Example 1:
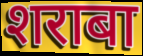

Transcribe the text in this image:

शराबा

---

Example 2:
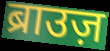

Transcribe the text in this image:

ब्राउज़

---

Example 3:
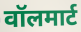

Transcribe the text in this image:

वॉलमार्ट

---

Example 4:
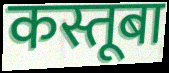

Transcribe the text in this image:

कस्तूबा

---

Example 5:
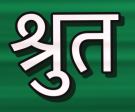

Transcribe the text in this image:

श्रुत